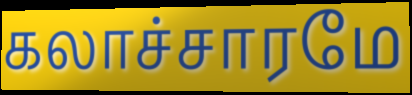
கலாச்சாரமே